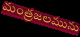
మంత్రజలమును